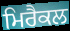
ਮਿਰੈਕਲ